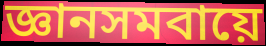
জ্ঞানসমবায়ে